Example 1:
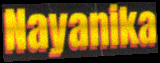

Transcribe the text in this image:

Nayanika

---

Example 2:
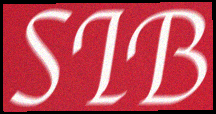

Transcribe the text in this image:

SIB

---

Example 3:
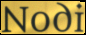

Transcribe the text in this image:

Nodi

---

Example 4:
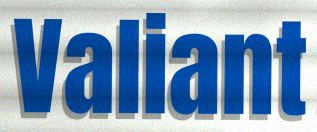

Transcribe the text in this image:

Valiant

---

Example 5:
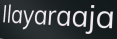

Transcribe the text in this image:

Ilayaraaja